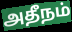
அதீநம்